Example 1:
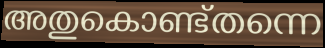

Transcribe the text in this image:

അതുകൊണ്ട്തന്നെ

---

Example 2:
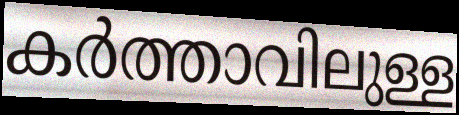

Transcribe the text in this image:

കർത്താവിലുള്ള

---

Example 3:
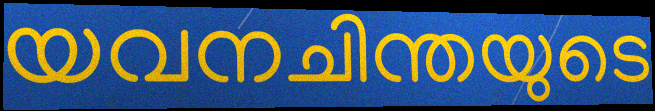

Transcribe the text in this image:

യവനചിന്തയുടെ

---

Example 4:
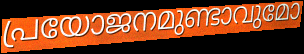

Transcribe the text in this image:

പ്രയോജനമുണ്ടാവുമോ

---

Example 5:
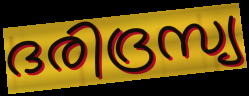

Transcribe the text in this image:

ദരിദ്രസ്യ